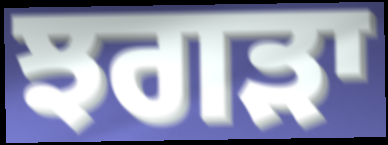
ਝਗੜਾ